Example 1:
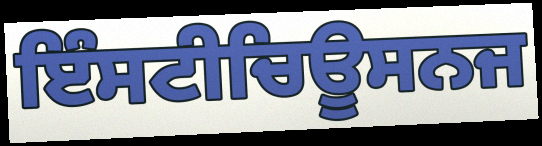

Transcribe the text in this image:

ਇੰਸਟੀਚਿਊਸਨਜ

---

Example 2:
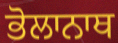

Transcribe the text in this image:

ਭੋਲਾਨਾਥ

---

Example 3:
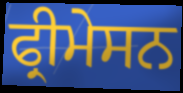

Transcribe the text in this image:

ਫ੍ਰੀਮੇਸਨ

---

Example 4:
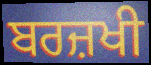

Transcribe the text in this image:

ਬਰਜ਼ਖੀ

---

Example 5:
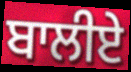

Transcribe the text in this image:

ਬਾਲੀਏ